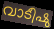
വാടീഷു